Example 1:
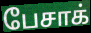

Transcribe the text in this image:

பேசாக்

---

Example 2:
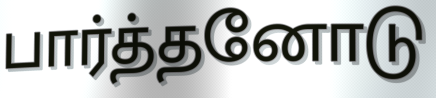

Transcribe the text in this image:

பார்த்தனோடு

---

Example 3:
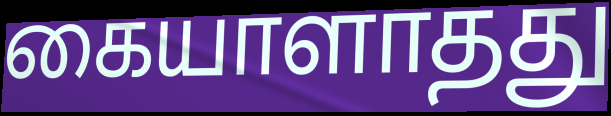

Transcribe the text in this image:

கையாளாதது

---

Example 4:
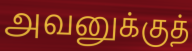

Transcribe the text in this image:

அவனுக்குத்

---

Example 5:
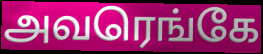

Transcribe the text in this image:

அவரெங்கே